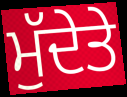
ਮੁੱਦੇਤੇ